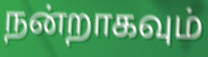
நன்றாகவும்